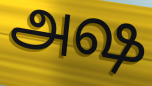
அஷ